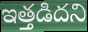
ఇత్తడిదని